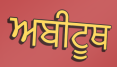
ਅਬੀਟੂਥ